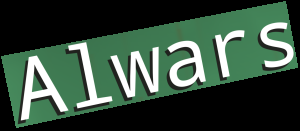
Alwars